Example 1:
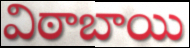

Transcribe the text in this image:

విఠాబాయి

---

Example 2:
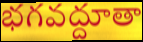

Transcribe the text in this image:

భగవద్దూతా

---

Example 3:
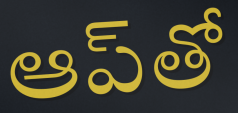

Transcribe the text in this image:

ఆప్‌తో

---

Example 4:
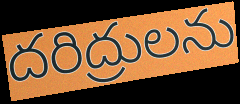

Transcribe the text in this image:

దరిద్రులను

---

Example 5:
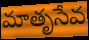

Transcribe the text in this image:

మాతృసేవ